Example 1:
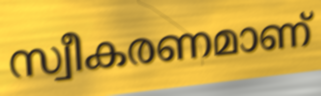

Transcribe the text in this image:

സ്വീകരണമാണ്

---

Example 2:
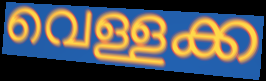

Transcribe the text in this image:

വെള്ളക്ക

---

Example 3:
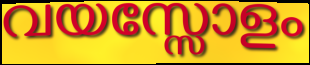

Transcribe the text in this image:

വയസ്സോളം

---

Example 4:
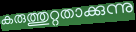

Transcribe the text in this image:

കരുത്തുറ്റതാക്കുന്നു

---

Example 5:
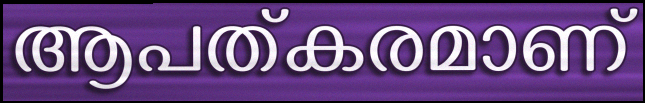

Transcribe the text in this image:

ആപത്കരമാണ്